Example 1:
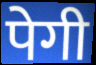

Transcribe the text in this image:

पेगी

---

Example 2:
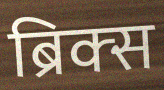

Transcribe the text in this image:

ब्रिक्‍स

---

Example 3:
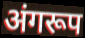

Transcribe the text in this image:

अंगरूप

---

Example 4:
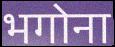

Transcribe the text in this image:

भगोना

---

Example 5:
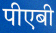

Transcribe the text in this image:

पीएबी